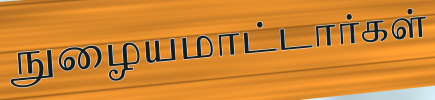
நுழையமாட்டார்கள்